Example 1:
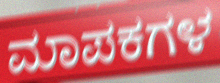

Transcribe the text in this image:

ಮಾಪಕಗಳ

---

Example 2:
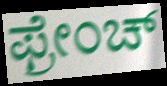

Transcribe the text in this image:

ಫ್ರೇಂಚ್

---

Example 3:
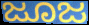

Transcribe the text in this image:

ಜೂಜ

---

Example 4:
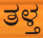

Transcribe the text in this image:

ತಳ್ತ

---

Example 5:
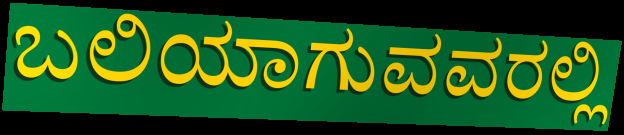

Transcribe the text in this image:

ಬಲಿಯಾಗುವವರಲ್ಲಿ